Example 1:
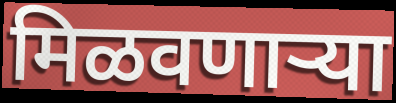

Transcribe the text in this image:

मिळवणाऱ्या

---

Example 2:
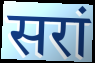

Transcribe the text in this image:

सरां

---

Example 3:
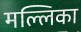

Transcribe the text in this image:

मल्लिका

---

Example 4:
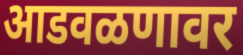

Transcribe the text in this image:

आडवळणावर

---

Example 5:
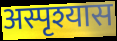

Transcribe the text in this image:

अस्पृश्यास